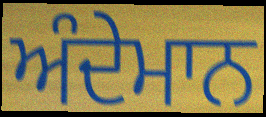
ਅੰਦੇਮਾਨ